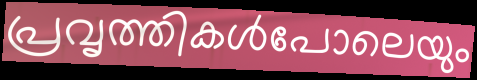
പ്രവൃത്തികൾപോലെയും